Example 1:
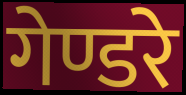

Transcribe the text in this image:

गेण्डरे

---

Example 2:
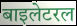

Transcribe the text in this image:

बाइलेटरल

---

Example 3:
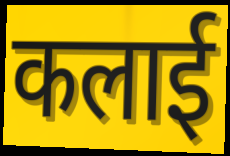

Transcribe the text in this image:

कलाई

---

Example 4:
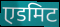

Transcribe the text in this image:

एडमिट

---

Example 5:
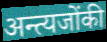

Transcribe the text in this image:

अन्त्यजोंकी